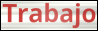
Trabajo